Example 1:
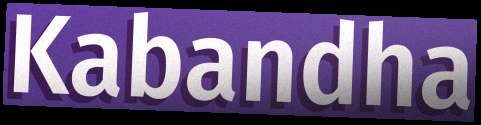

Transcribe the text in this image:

Kabandha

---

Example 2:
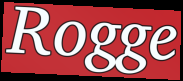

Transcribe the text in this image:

Rogge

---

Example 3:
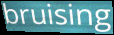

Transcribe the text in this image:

bruising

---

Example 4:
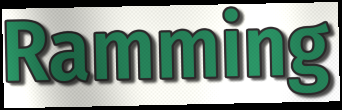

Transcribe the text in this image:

Ramming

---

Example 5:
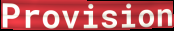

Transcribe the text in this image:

Provision